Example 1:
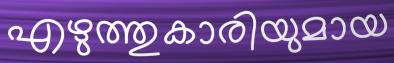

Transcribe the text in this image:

എഴുത്തുകാരിയുമായ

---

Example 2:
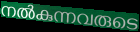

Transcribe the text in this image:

നൽകുന്നവരുടെ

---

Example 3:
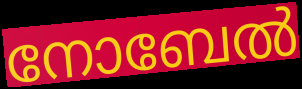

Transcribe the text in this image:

നോബേൽ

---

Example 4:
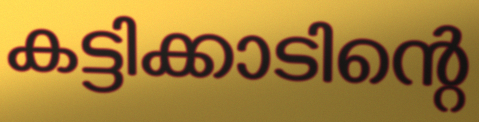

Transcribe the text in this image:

കട്ടിക്കാടിന്റെ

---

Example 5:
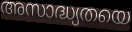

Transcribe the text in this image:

അസാദ്ധ്യതയെ